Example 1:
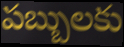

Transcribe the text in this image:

పబ్బులకు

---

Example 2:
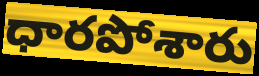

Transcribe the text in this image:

ధారపోశారు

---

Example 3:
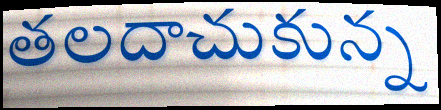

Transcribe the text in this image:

తలదాచుకున్న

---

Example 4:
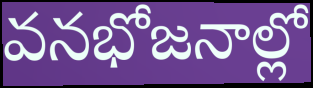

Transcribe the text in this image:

వనభోజనాల్లో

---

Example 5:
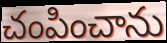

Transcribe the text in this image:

చంపించాను